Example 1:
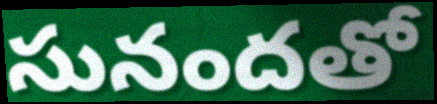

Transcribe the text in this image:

సునందతో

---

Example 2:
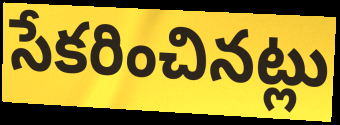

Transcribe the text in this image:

సేకరించినట్లు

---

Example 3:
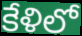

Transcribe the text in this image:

కేళిలో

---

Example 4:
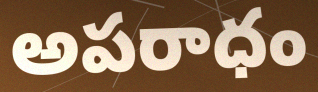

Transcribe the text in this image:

అపరాధం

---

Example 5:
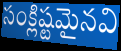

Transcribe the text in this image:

సంక్లిష్టమైనవి